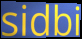
sidbi